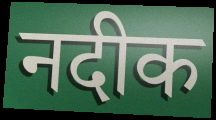
नदीक